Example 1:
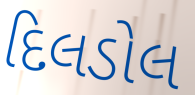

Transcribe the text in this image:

દિલડોલ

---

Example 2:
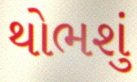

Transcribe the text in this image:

થોભશું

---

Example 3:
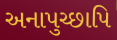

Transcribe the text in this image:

અનાપુચ્છાપિ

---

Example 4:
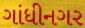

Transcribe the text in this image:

ગાંધીનગર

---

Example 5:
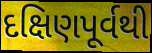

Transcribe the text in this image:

દક્ષિણપૂર્વથી